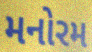
મનોરમ